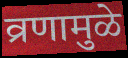
व्रणामुळे